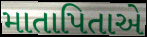
માતાપિતાએ